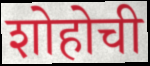
शोहोची